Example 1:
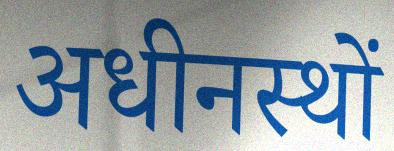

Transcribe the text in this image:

अधीनस्थों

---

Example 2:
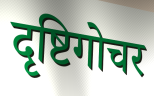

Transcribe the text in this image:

दृष्टिगोचर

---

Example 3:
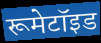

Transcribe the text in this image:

रूमेटॉइड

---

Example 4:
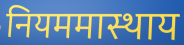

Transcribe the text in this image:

नियममास्थाय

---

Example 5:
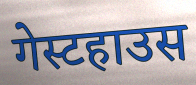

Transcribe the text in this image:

गेस्टहाउस